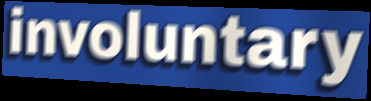
involuntary